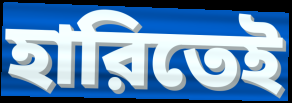
হারিতেই